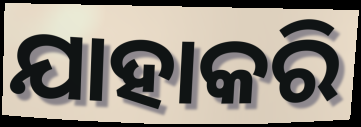
ଯାହାକରି